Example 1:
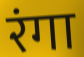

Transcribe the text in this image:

रंगा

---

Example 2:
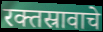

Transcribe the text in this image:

रक्तस्रावाचे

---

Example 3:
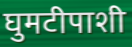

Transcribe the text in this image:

घुमटीपाशी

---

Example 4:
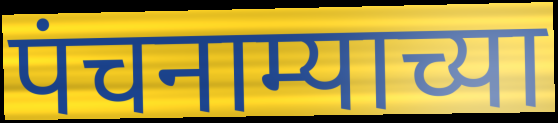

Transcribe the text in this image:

पंचनाम्याच्या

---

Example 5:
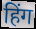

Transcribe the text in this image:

हिंग